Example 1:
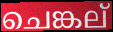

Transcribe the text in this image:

ചെങ്കല്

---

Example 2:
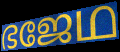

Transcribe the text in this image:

ഭജേഥ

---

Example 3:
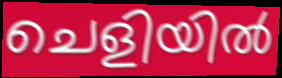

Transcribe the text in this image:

ചെളിയിൽ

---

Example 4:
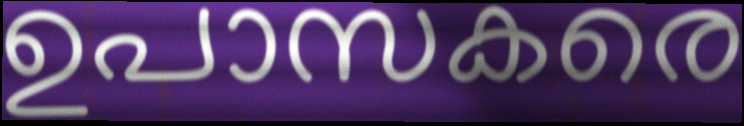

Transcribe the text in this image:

ഉപാസകരെ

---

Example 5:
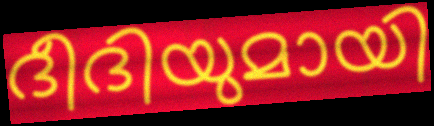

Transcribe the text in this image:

ദീദിയുമായി